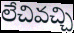
లేచివచ్చి